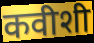
कवीशी